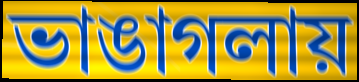
ভাঙাগলায়